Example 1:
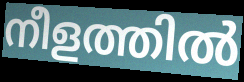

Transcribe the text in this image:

നീളത്തിൽ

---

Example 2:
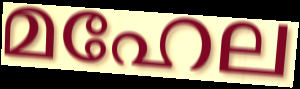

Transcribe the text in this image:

മഹേല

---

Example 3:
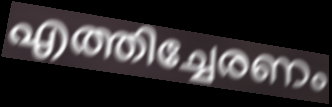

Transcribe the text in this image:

എത്തിച്ചേരണം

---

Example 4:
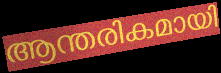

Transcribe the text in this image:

ആന്തരികമായി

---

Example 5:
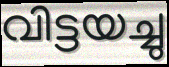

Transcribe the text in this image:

വിട്ടയച്ചു